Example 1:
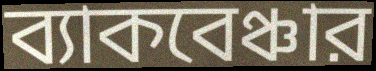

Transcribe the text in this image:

ব্যাকবেঞ্চার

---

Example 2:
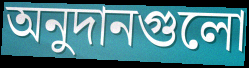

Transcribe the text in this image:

অনুদানগুলো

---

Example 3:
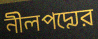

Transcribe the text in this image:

নীলপদ্মের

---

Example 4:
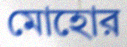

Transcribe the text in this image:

মোহোর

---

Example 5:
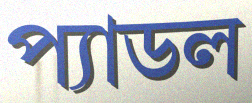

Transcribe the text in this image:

প্যাডল